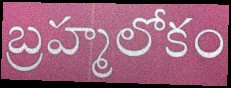
బ్రహ్మలోకం